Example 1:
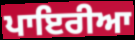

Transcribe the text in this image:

ਪਾਇਰੀਆ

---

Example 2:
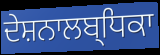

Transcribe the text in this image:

ਦੇਸ਼ਨਾਲਬ੍ਧਿਕਾ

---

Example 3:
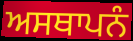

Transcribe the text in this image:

ਅਸਥਾਪਨੰ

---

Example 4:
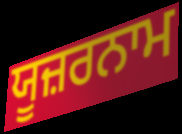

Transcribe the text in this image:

ਯੂਜ਼ਰਨਾਮ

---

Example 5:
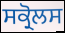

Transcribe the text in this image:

ਸਕ੍ਰੋਲਸ